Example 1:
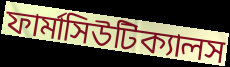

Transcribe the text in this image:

ফার্মাসিউটিক্যালস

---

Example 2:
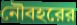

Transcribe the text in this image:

নৌবহরের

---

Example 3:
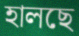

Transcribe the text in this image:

হালছে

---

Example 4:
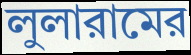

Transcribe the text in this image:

লুলারামের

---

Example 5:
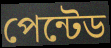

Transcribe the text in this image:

পেন্টেড